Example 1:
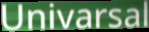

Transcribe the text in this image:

Univarsal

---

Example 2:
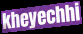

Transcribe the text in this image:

kheyechhi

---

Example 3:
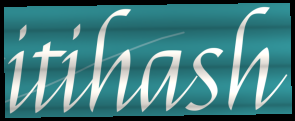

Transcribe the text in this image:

itihash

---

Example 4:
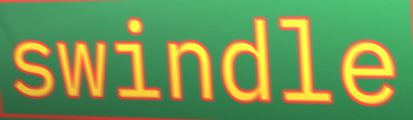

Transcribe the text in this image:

swindle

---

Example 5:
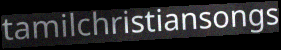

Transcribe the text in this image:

tamilchristiansongs